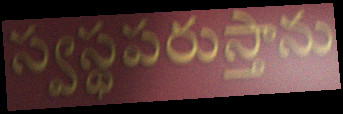
స్వస్థపరుస్తాను